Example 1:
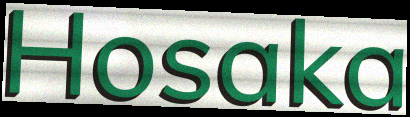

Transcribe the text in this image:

Hosaka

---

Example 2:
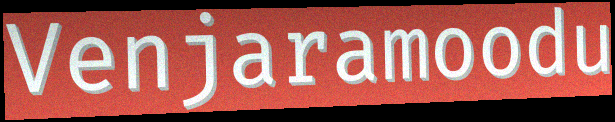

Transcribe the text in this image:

Venjaramoodu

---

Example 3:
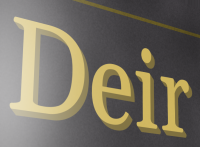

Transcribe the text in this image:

Deir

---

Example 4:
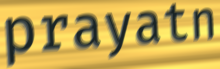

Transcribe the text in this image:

prayatn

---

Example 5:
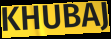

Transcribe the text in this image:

KHUBAJ